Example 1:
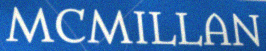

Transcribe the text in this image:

MCMILLAN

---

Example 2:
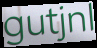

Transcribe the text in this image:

gutjnl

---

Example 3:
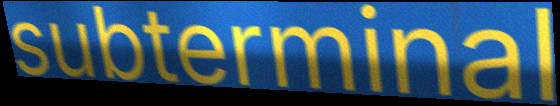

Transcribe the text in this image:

subterminal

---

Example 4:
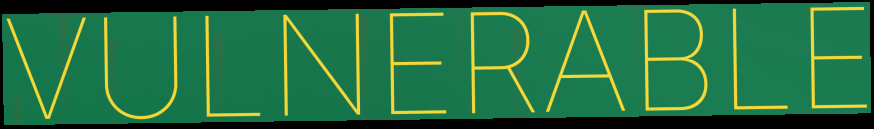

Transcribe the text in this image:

VULNERABLE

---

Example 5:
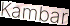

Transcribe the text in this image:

Kambar